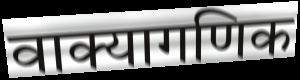
वाक्यागणिक